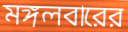
মঙ্গলবারের